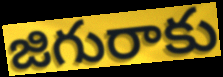
జిగురాకు